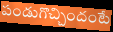
పండుగొచ్చిందంటే